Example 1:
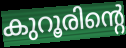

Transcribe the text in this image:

കുറൂരിന്റെ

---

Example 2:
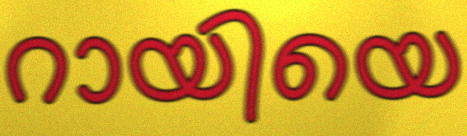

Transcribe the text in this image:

റായിയെ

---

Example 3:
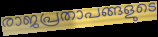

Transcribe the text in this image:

രാജപ്രതാപങ്ങളുടെ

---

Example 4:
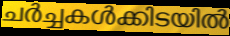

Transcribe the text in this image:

ചർച്ചകൾക്കിടയിൽ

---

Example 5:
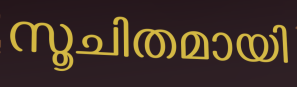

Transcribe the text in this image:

സൂചിതമായി